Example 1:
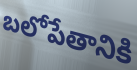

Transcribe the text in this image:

బలోపేతానికి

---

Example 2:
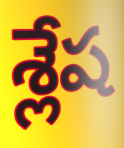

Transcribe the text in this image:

శ్లేష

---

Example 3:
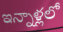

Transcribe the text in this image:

ఇన్నాళ్లలో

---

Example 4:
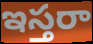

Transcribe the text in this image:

ఇస్తరా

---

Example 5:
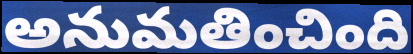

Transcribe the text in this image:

అనుమతించింది